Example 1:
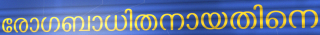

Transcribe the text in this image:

രോഗബാധിതനായതിനെ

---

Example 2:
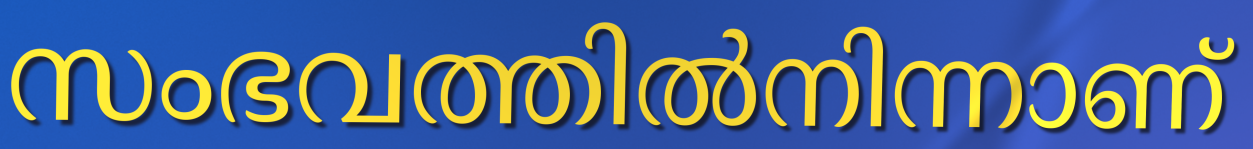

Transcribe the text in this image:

സംഭവത്തിൽനിന്നാണ്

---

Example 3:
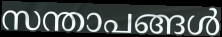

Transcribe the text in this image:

സന്താപങ്ങൾ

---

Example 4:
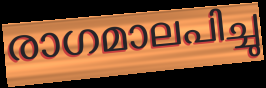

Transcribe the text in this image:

രാഗമാലപിച്ചു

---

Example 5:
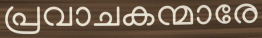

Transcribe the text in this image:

പ്രവാചകന്മാരേ